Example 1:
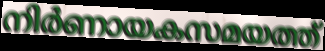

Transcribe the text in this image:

നിർണായകസമയത്ത്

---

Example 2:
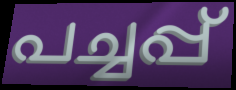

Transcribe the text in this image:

പച്ചപ്പ്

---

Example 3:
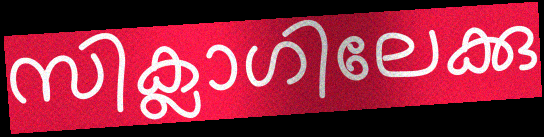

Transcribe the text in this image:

സിക്ലാഗിലേക്കു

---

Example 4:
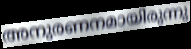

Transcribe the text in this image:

അനുരണനമായിരുന്നു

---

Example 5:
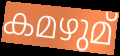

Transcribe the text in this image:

കമഴുമ്